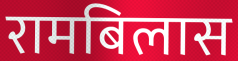
रामबिलास